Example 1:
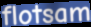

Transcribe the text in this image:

flotsam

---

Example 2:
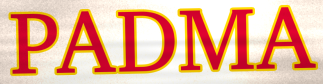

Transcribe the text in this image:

PADMA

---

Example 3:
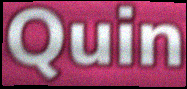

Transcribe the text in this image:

Quin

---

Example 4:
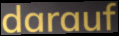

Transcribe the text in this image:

darauf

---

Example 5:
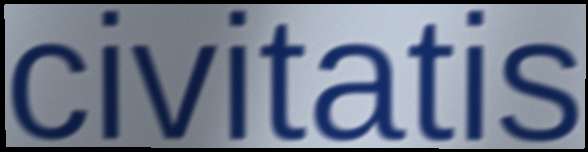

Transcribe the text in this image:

civitatis